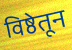
विष्ठेतून